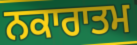
ਨਕਾਰਾਤਮ